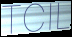
TCIL